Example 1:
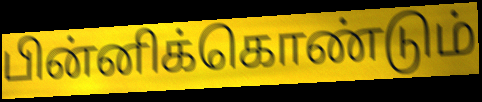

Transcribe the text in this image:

பின்னிக்கொண்டும்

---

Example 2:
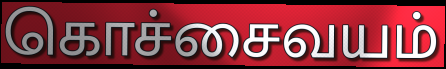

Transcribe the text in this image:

கொச்சைவயம்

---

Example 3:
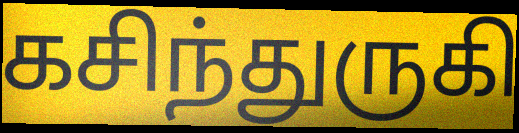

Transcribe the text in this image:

கசிந்துருகி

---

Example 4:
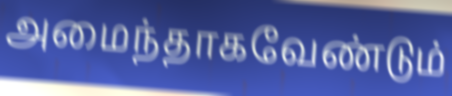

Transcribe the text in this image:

அமைந்தாகவேண்டும்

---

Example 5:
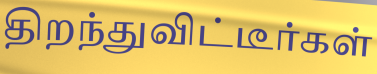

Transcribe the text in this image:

திறந்துவிட்டீர்கள்